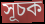
সূচক